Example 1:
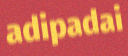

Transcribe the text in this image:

adipadai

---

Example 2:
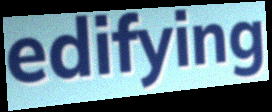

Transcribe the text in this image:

edifying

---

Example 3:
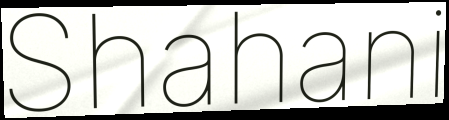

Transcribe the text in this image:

Shahani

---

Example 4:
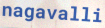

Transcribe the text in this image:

nagavalli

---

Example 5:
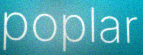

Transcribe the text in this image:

poplar